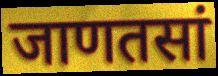
जाणतसां